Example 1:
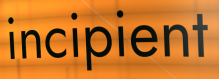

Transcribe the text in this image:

incipient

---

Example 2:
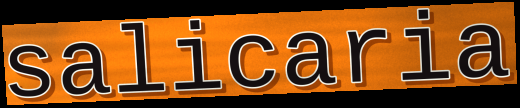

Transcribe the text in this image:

salicaria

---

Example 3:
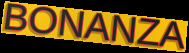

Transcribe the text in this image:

BONANZA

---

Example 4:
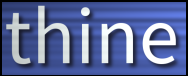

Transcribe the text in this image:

thine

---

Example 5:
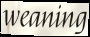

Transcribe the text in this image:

weaning